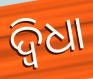
ଦ୍ୱିଧା